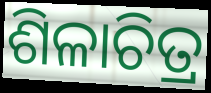
ଶିଳାଚିତ୍ର